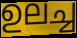
ഉലച്ച